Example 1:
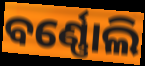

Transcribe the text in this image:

ବର୍ଣ୍ଣୋଲି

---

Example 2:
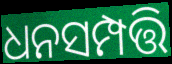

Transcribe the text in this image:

ଧନସମ୍ପତ୍ତି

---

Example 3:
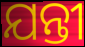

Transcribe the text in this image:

ଯନ୍ତୀ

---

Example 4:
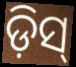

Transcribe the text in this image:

ଡ଼ିସ୍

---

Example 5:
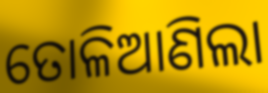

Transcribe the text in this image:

ତୋଳିଆଣିଲା